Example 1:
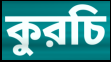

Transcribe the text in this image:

কুরচি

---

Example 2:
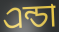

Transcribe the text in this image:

এন্ডা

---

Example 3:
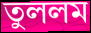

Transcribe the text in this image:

তুললম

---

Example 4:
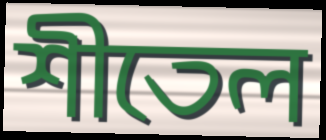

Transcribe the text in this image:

শীতেল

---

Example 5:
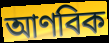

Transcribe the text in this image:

আণবিক